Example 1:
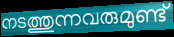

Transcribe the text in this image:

നടത്തുന്നവരുമുണ്ട്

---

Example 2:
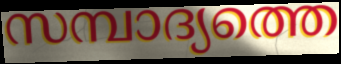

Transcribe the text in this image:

സമ്പാദ്യത്തെ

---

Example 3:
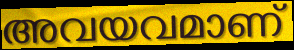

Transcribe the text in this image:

അവയവമാണ്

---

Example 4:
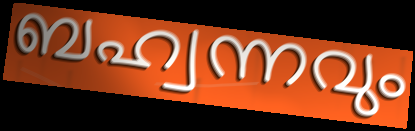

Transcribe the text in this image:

ബഹ്വന്നവും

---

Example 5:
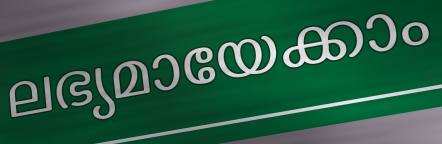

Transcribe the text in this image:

ലഭ്യമായേക്കാം